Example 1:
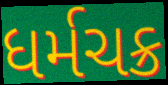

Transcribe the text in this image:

ધર્મચક્ર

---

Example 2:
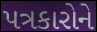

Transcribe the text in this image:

પત્રકારોને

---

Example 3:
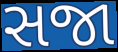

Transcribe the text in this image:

સજા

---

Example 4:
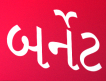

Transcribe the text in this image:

બર્નેટ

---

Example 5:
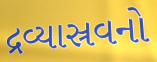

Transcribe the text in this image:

દ્રવ્યાસ્રવનો